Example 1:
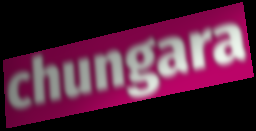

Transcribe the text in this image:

chungara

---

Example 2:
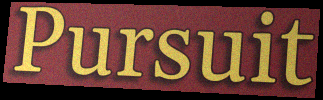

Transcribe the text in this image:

Pursuit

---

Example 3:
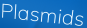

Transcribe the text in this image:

Plasmids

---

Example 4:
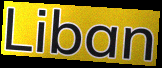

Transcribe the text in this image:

Liban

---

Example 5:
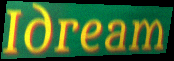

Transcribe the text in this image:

Idream